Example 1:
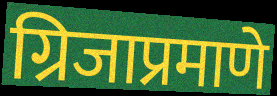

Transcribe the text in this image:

ग्रिजाप्रमाणे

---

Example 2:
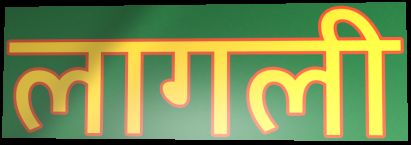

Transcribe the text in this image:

लागली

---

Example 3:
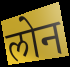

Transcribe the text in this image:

लोन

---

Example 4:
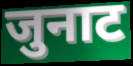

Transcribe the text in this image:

जुनाट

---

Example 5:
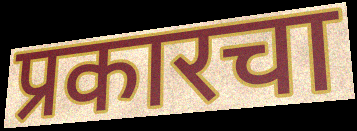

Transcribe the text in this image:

प्रकारचा